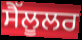
ਸੈੱਲੂਲਰ